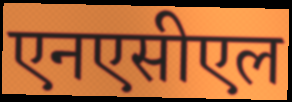
एनएसीएल